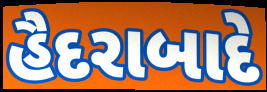
હૈદરાબાદે